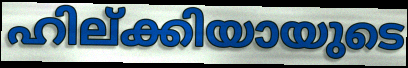
ഹില്ക്കിയായുടെ